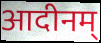
आदीनम्